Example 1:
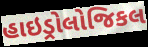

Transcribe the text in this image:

હાઇડ્રોલોજિકલ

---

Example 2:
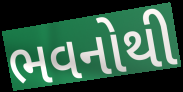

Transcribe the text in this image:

ભવનોથી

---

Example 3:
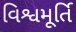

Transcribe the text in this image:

વિશ્વમૂર્તિ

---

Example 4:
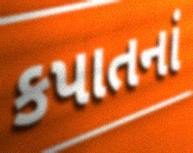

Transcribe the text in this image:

કપાતનાં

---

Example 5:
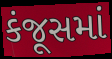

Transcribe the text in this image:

કંજૂસમાં